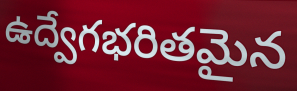
ఉద్వేగభరితమైన